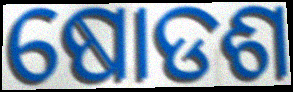
ଷୋଡଶ